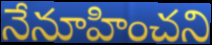
నేనూహించని